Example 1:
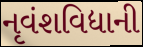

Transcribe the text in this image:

નૃવંશવિદ્યાની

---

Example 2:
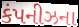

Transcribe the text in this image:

કંપનીઝના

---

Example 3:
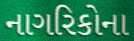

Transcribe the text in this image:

નાગરિકોના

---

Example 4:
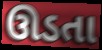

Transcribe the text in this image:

ઊડતા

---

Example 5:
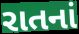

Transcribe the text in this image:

રાતનાં